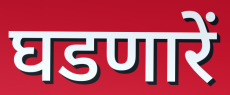
घडणारें